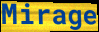
Mirage